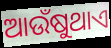
ଆଉଁଷୁଥାଏ